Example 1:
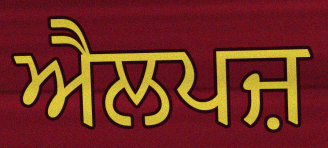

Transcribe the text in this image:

ਐਲਪਜ਼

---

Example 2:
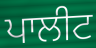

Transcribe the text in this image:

ਪਾਲੀਟ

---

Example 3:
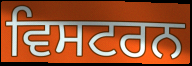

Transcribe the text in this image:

ਵਿਸਟਰਨ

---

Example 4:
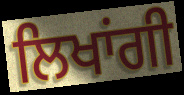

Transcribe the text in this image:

ਲਿਖਾਂਗੀ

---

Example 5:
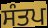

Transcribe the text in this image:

ਸੰਤਪ